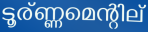
ടൂര്ണ്ണമെന്റില്